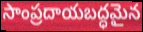
సాంప్రదాయబద్ధమైన